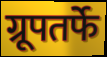
ग्रूपतर्फे